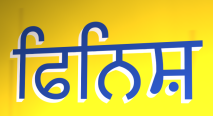
ਫਿਨਿਸ਼